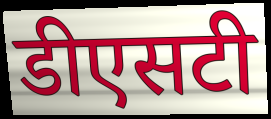
डीएसटी